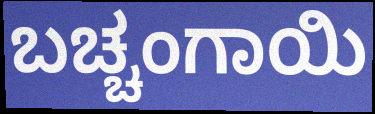
ಬಚ್ಚಂಗಾಯಿ